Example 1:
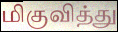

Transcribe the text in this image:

மிகுவித்து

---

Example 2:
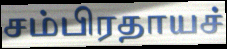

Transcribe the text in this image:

சம்பிரதாயச்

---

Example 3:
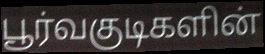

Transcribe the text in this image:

பூர்வகுடிகளின்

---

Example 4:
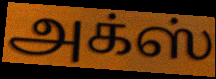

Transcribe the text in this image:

அக்ஸ்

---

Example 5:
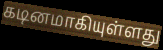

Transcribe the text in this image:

கடினமாகியுள்ளது